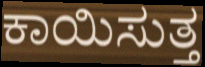
ಕಾಯಿಸುತ್ತ